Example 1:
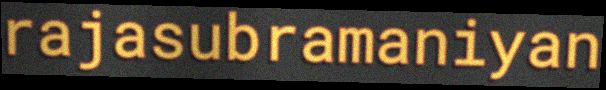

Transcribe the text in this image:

rajasubramaniyan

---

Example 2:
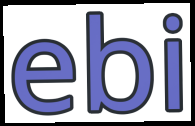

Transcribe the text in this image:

ebi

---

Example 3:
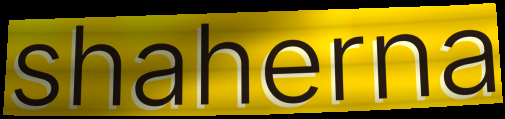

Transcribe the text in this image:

shaherna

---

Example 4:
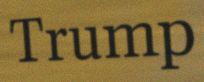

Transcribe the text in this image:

Trump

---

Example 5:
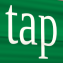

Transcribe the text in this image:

tap